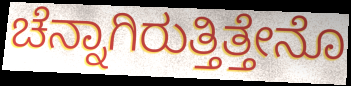
ಚೆನ್ನಾಗಿರುತ್ತಿತ್ತೇನೊ